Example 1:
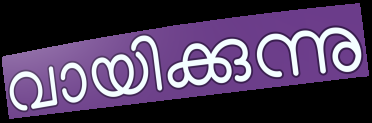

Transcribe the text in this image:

വായിക്കുന്നു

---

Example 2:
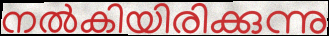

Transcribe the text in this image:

നൽകിയിരിക്കുന്നു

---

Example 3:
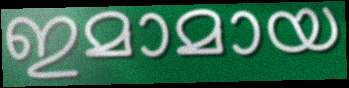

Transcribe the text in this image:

ഇമാമായ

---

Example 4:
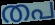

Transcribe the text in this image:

തപ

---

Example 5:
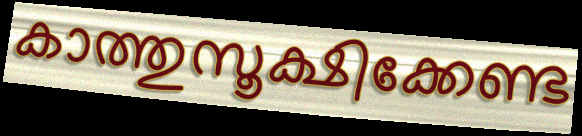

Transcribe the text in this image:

കാത്തുസൂക്ഷിക്കേണ്ട